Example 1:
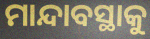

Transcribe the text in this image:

ମାନ୍ଦାବସ୍ଥାକୁ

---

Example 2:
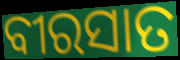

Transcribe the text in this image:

ବୀରସାତ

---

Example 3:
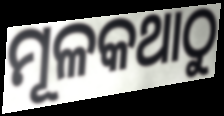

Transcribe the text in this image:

ମୂଳକଥାଠୁ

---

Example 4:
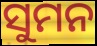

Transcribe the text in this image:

ସୁମନ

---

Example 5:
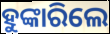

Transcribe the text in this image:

ହୁଙ୍କାରିଲେ